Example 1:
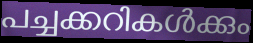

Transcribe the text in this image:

പച്ചക്കറികൾക്കും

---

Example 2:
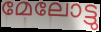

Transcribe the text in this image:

മേലോട്ടു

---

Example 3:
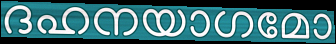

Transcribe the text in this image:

ദഹനയാഗമോ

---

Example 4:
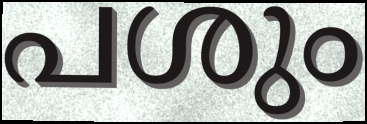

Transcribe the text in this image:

പശും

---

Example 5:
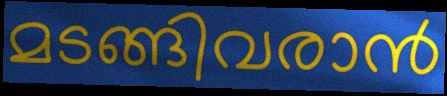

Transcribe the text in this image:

മടങ്ങിവരാൻ